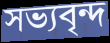
সভ্যবৃন্দ